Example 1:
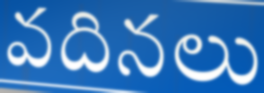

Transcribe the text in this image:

వదినలు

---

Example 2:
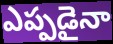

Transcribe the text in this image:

ఎప్పడైనా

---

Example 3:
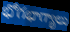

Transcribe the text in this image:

భోగభాగ్యాలు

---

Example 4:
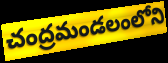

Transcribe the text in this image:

చంద్రమండలంలోని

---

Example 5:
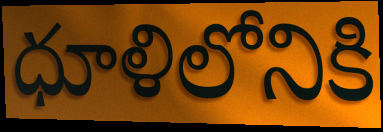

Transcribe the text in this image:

ధూళిలోనికి